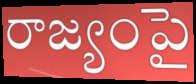
రాజ్యంపై